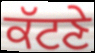
ਕੱਟਣੇ